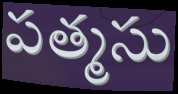
పత్మసు